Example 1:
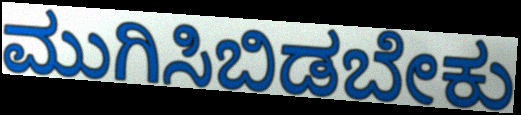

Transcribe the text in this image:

ಮುಗಿಸಿಬಿಡಬೇಕು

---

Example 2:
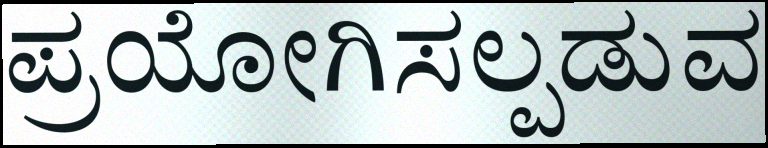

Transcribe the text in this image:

ಪ್ರಯೋಗಿಸಲ್ಪಡುವ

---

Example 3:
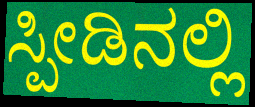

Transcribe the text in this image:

ಸ್ಪೀಡಿನಲ್ಲಿ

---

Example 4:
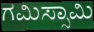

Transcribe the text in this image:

ಗಮಿಸ್ಸಾಮಿ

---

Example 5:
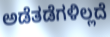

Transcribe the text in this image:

ಅಡೆತಡೆಗಳಿಲ್ಲದೆ